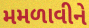
મમળાવીને